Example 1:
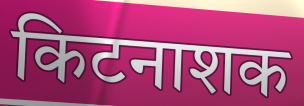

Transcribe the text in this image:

किटनाशक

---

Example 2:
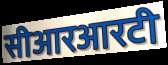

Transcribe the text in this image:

सीआरआरटी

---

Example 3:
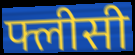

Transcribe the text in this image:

फ्लीसी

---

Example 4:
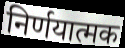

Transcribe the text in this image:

निर्णयात्मक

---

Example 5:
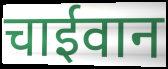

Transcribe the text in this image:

चाईवान